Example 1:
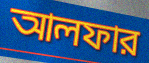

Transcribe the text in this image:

আলফার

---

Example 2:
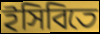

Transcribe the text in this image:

ইসিবিতে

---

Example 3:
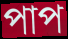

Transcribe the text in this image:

পাপ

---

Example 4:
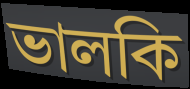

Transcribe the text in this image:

ভালকি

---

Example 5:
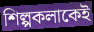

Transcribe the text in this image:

শিল্পকলাকেই